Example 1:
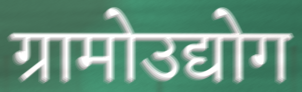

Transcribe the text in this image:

ग्रामोउद्योग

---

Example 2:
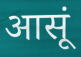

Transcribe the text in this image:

आसूं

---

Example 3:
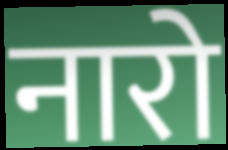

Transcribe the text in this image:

नारो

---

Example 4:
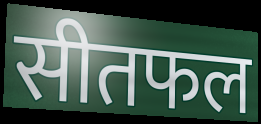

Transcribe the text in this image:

सीतफल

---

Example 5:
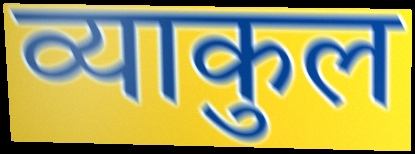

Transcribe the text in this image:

व्याकुल